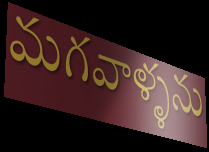
మగవాళ్ళను